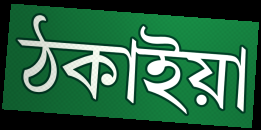
ঠকাইয়া